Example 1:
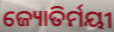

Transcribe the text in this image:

ଜ୍ୟୋତିର୍ମୟୀ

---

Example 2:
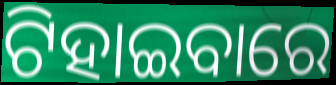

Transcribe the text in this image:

ଟିହାଇବାରେ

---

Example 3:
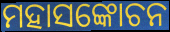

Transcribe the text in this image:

ମହାସଙ୍କୋଚନ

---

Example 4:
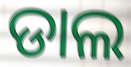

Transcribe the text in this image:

ଡାଲ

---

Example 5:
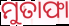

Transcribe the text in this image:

ମୁତାଫା